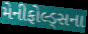
મેનીફોલ્ડ્સના